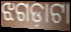
ଝଗଡ଼ାଟା